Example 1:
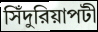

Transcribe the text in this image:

সিঁদুরিয়াপটী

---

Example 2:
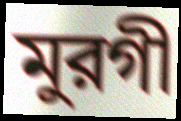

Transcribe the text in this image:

মুরগী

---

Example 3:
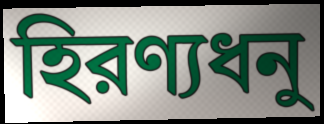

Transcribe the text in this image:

হিরণ্যধনু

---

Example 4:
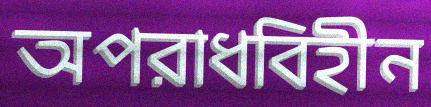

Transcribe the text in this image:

অপরাধবিহীন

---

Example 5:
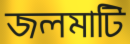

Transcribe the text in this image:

জলমাটি